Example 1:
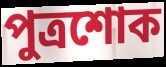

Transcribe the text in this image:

পুত্রশোক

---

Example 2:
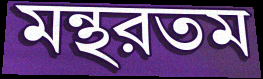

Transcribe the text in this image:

মন্থরতম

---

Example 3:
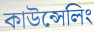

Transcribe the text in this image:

কাউন্সেলিং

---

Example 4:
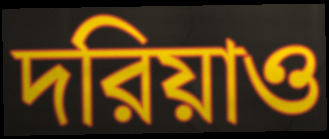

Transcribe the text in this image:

দরিয়াও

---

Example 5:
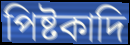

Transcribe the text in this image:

পিষ্টকাদি